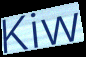
Kiw